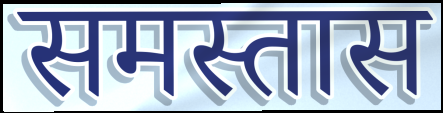
समस्तास